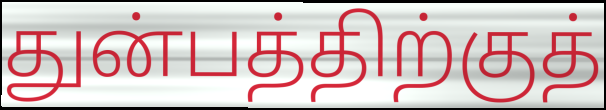
துன்பத்திற்குத்